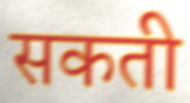
सकती